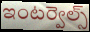
ఇంటర్వెల్స్